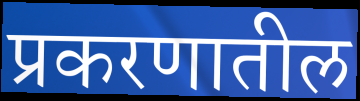
प्रकरणातील